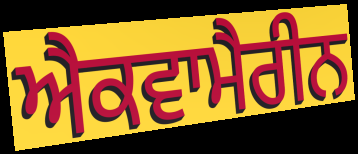
ਐਕਵਾਮੈਰੀਨ